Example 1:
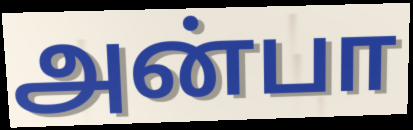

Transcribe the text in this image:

அன்பா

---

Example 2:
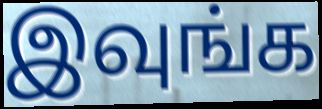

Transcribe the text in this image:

இவுங்க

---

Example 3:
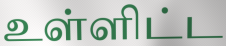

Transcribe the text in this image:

உள்ளிட்ட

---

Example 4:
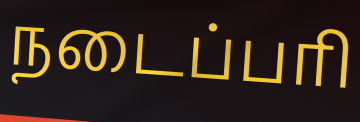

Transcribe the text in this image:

நடைப்பரி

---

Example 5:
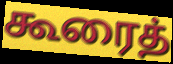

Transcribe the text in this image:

கூரைத்